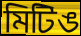
মিটিঙ